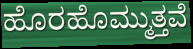
ಹೊರಹೊಮ್ಮುತ್ತವೆ